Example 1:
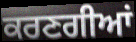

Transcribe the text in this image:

ਕਰਣਗੀਆਂ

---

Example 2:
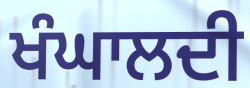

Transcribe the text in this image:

ਖੰਘਾਲਦੀ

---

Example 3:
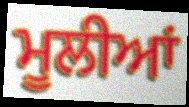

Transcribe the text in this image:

ਮੂਲੀਆਂ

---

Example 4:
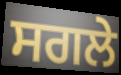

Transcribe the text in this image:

ਸਗਲੇ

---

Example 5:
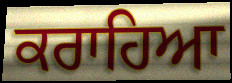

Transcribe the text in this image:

ਕਰਾਹਿਆ